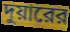
দুয়ারের